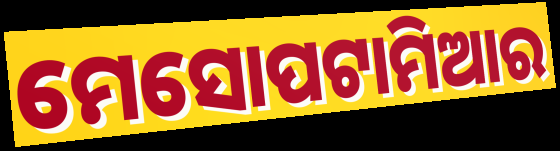
ମେସୋପଟାମିଆର